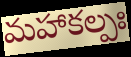
మహాకల్పః